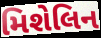
મિશેલિન